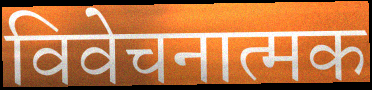
विवेचनात्मक